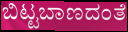
ಬಿಟ್ಟಬಾಣದಂತೆ